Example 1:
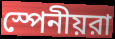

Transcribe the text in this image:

স্পেনীয়রা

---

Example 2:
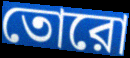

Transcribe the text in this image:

তোরো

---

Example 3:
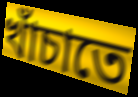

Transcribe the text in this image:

খাঁচাতে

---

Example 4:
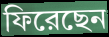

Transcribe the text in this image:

ফিরেছেন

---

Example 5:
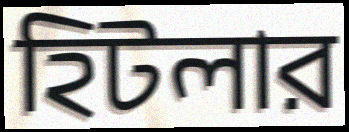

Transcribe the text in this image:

হিটলার